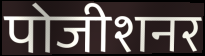
पोजीशनर